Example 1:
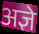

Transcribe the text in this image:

अज्ञे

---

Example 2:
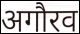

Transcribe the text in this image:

अगौरव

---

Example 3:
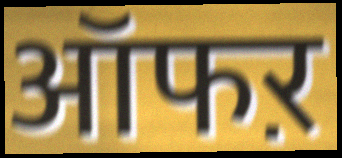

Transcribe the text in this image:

ऑफऱ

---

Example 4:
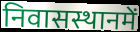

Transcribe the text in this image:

निवासस्थानमें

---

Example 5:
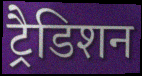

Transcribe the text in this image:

ट्रैडिशन